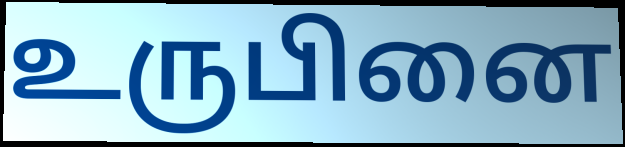
உருபினை